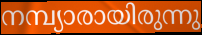
നമ്പ്യാരായിരുന്നു